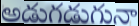
అడుగడుగునా